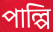
পাল্পি